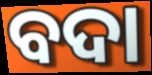
ବଦା